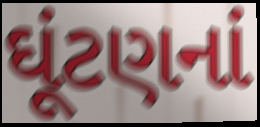
ઘૂંટણનાં